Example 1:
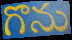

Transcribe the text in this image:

గొను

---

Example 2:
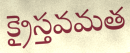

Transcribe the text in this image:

క్రైస్తవమత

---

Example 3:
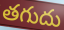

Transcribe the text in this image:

తగుదు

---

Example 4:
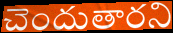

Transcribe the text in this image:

చెందుతారని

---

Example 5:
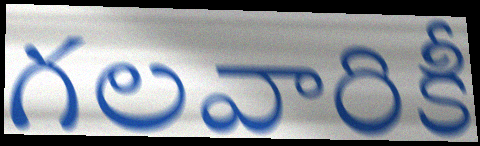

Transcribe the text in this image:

గలవారికీ